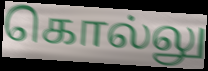
கொல்லு